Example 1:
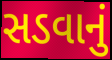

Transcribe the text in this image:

સડવાનું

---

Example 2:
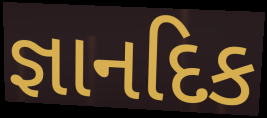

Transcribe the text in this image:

જ્ઞાનદિક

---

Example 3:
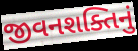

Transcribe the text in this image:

જીવનશક્તિનું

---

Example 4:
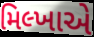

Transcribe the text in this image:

મિલ્ખાએ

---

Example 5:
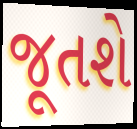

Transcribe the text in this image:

જૂતશે